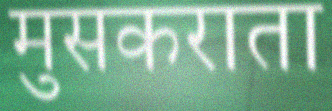
मुसकराता